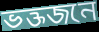
ভক্তজনে